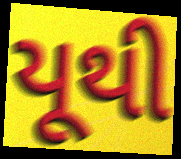
યૂથી